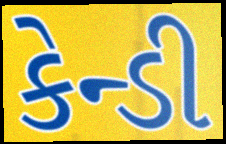
કેન્ડી